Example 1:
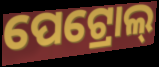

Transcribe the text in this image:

ପେଟ୍ରୋଲ୍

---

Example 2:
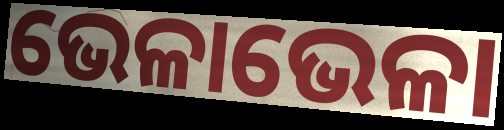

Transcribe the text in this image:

ଭେଳାଭେଳା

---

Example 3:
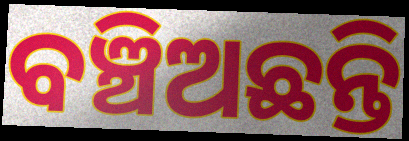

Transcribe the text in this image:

ବଞ୍ଚିଅଛନ୍ତି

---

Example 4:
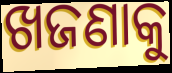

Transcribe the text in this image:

ଖଜଣାକୁ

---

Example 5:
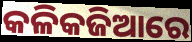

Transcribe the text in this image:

କଳିକଜିଆରେ